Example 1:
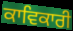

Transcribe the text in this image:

ਕਾਵਿਕਾਰੀ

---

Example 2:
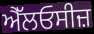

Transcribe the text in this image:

ਐੱਲਓਸੀਜ਼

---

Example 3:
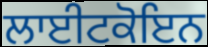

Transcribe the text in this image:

ਲਾਈਟਕੋਇਨ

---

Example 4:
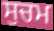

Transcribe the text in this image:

ਸੁਚਮ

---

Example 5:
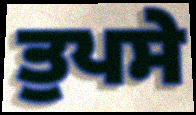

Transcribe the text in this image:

ਤੁਪਸੇ